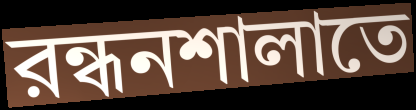
রন্ধনশালাতে